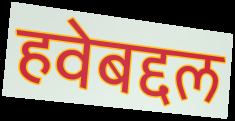
हवेबद्दल